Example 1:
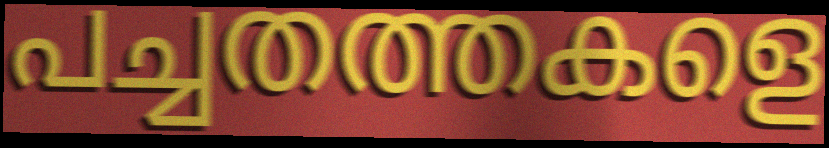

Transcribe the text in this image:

പച്ചതത്തകളെ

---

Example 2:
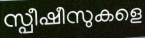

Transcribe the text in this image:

സ്പീഷീസുകളെ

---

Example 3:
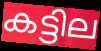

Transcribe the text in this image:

കട്ടില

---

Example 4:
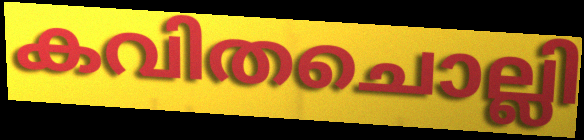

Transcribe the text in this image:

കവിതചൊല്ലി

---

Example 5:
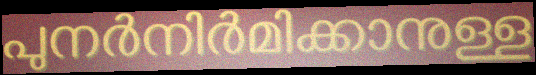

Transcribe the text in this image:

പുനർനിർമിക്കാനുള്ള